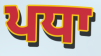
ਪਧਾ